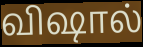
விஷால்